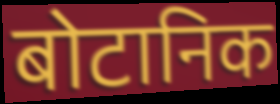
बोटानिक